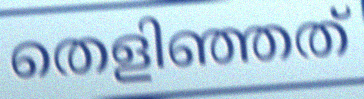
തെളിഞ്ഞത്